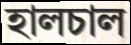
হালচাল